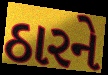
ઠારને